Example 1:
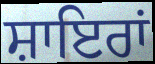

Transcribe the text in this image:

ਸ਼ਾਇਰਾਂ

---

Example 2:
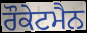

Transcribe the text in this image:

ਰੌਕੇਟਮੈਨ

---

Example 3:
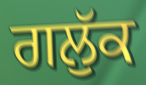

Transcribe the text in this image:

ਗਲੁੱਕ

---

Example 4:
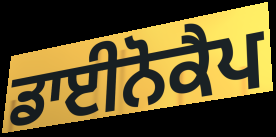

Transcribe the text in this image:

ਡਾਈਨੋਕੈਪ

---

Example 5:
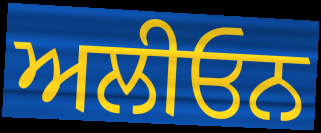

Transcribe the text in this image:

ਅਲੀਓਨ